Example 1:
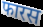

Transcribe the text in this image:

फारस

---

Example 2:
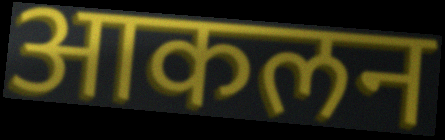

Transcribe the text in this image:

आकलन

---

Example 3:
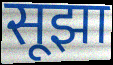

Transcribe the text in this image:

सूझा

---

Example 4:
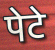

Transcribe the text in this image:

पेटे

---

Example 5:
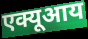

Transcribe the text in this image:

एक्यूआय